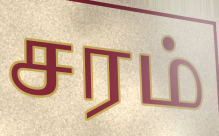
சரம்